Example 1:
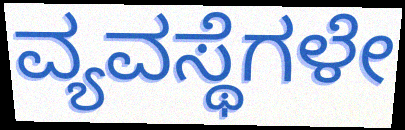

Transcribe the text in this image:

ವ್ಯವಸ್ಥೆಗಳೇ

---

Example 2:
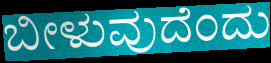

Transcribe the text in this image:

ಬೀಳುವುದೆಂದು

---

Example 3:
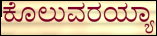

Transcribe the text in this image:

ಕೊಲುವರಯ್ಯಾ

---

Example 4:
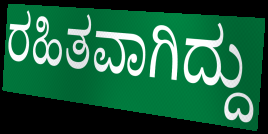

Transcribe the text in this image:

ರಹಿತವಾಗಿದ್ದು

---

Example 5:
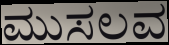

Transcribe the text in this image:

ಮುಸಲವ